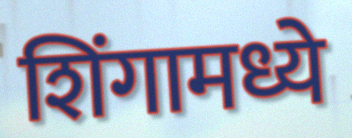
शिंगामध्ये